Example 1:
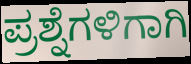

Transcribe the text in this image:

ಪ್ರಶ್ನೆಗಳಿಗಾಗಿ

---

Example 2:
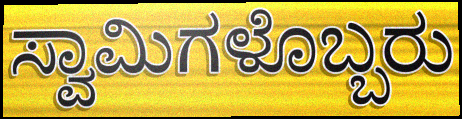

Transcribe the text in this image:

ಸ್ವಾಮಿಗಳೊಬ್ಬರು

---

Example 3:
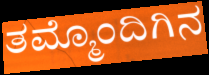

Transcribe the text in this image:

ತಮ್ಮೊಂದಿಗಿನ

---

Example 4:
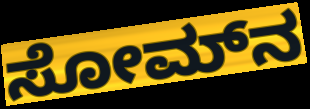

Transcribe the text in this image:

ಸೋಮ್‍ನ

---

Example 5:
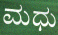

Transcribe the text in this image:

ಮಧು